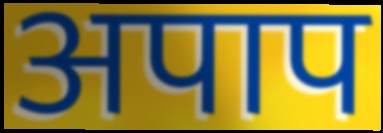
अपाप